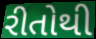
રીતોથી